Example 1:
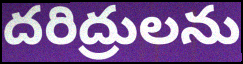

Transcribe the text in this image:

దరిద్రులను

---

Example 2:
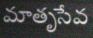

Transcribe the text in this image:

మాతృసేవ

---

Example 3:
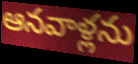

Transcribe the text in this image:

ఆనవాళ్లను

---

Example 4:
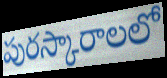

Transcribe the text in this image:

పురస్కారాలలో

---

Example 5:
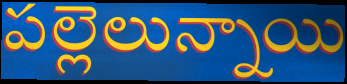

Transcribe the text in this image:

పల్లెలున్నాయి